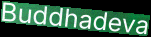
Buddhadeva